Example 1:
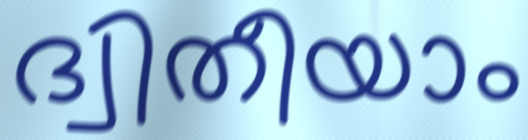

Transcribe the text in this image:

ദ്വിതീയാം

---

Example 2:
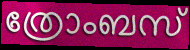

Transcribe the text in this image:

ത്രോംബസ്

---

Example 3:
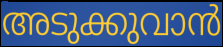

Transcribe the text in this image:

അടുക്കുവാൻ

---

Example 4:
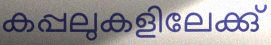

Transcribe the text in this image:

കപ്പലുകളിലേക്കു്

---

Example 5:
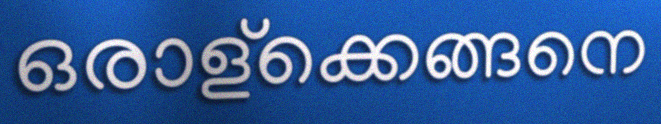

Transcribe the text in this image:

ഒരാള്ക്കെങ്ങനെ